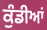
ਕੁੰਡੀਆਂ